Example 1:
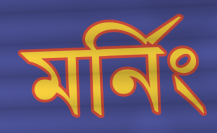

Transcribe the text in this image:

মর্নিং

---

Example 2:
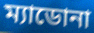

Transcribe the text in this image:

ম্যাডোনা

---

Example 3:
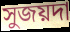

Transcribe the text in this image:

সুজয়দা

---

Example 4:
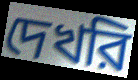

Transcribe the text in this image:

দেখরি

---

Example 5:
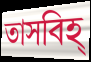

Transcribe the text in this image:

তাসবিহ্